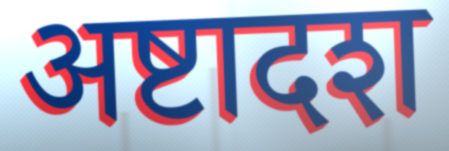
अष्टादश